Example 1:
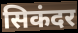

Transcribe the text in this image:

सिकंदर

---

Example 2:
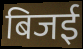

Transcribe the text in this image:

बिजई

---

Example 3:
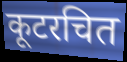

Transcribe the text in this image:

कूटरचित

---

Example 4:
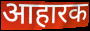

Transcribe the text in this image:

आहारक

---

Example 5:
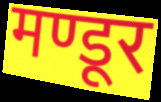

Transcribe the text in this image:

मण्डूर